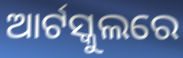
ଆର୍ଟସ୍କୁଲରେ